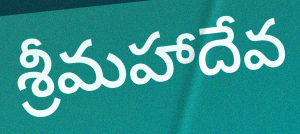
శ్రీమహాదేవ